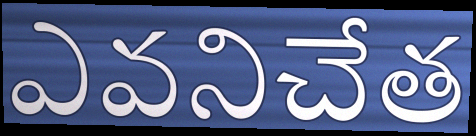
ఎవనిచేత